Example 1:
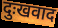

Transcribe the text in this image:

दुःखवाद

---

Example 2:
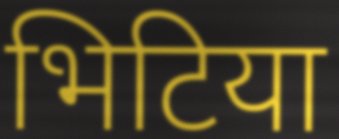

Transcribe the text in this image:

भिटिया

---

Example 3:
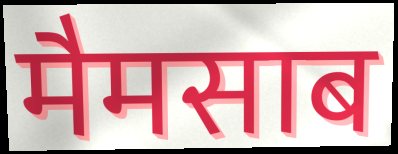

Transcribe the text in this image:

मैमसाब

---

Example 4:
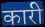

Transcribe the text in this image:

कारी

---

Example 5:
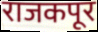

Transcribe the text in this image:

राजकपूर